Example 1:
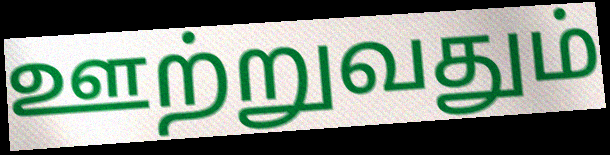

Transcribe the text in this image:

ஊற்றுவதும்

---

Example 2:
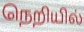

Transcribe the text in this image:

நெறியில்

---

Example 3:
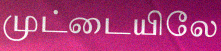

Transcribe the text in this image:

முட்டையிலே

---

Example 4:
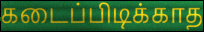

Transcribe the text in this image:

கடைப்பிடிக்காத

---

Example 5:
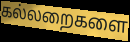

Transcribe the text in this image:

கல்லறைகளை